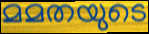
മമതയുടെ